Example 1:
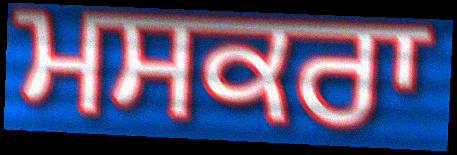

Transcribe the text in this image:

ਮਸਕਰਾ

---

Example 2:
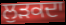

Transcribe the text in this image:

ਲੁੜਕਦਾ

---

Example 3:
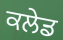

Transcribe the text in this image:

ਕਲੇਡ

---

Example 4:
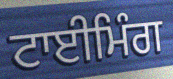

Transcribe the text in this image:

ਟਾਈਮਿੰਗ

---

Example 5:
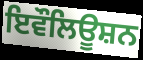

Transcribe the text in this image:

ਇਵੌਲਿਊਸ਼ਨ